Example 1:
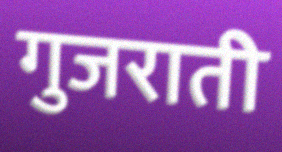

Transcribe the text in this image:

गुजराती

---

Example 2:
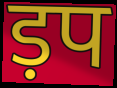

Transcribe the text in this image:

ड़प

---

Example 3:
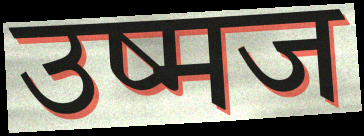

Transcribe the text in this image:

उष्मज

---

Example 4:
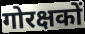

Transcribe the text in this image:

गोरक्षकों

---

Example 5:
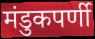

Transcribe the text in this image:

मंडुकपर्णी